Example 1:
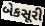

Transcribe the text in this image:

બેકસૂરી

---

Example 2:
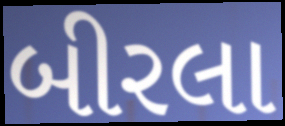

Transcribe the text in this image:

બીરલા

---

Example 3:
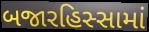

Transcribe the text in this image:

બજારહિસ્સામાં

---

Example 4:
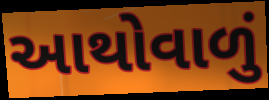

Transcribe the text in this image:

આથોવાળું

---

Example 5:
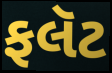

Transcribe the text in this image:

ફલૅટ